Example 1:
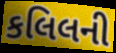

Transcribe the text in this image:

કલિલની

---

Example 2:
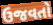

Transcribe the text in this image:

ઉજવતો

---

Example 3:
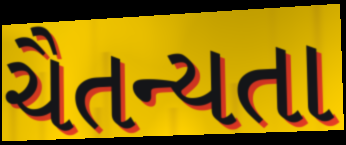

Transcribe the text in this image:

ચૈતન્યતા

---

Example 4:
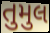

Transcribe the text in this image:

તુમુલ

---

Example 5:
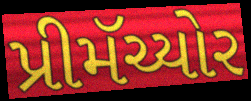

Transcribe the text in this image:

પ્રીમૅચ્યોર